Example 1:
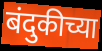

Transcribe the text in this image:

बंदुकीच्या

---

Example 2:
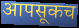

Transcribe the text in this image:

आपसूकच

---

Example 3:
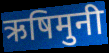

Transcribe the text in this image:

ऋषिमुनी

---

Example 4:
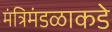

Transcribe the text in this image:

मंत्रिमंडळाकडे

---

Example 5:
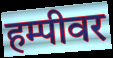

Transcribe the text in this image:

हम्पीवर